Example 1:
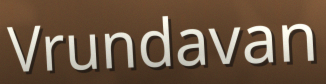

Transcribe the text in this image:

Vrundavan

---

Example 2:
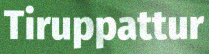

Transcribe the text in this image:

Tiruppattur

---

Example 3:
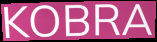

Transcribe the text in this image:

KOBRA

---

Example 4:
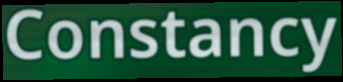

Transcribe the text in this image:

Constancy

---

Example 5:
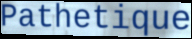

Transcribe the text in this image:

Pathetique